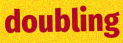
doubling